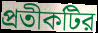
প্রতীকটির